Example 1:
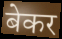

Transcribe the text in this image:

बेकर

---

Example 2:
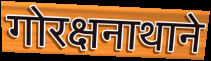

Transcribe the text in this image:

गोरक्षनाथाने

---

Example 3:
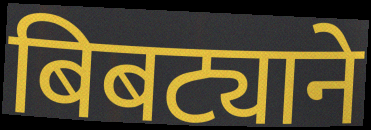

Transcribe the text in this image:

बिबट्याने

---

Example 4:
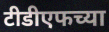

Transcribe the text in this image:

टीडीएफच्या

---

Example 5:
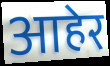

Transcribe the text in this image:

आहेर